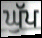
ਘੁੱਪ